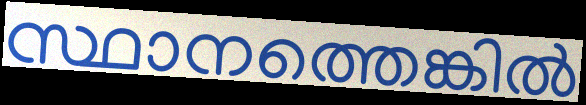
സ്ഥാനത്തെങ്കിൽ